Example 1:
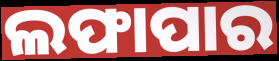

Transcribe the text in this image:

ଲଫାପାର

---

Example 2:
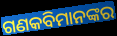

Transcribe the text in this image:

ଗଣକବିମାନଙ୍କର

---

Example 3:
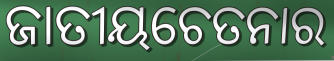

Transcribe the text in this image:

ଜାତୀୟଚେତନାର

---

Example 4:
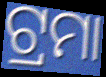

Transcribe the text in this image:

ଟ୍ରମା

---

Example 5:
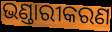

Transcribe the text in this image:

ଭଣ୍ଡାରୀକରଣ